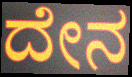
ದೇನ